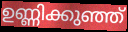
ഉണ്ണിക്കുഞ്ഞ്